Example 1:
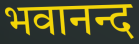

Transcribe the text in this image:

भवानन्द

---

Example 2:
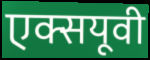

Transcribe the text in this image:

एक्सयूवी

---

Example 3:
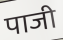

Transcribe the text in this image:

पाजी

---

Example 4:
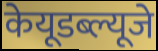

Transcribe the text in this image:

केयूडब्ल्यूजे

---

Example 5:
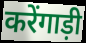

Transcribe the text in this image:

करेंगाड़ी